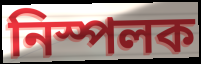
নিস্পলক